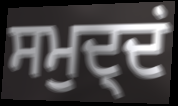
ਸਮੁਦ੍ਦਂ